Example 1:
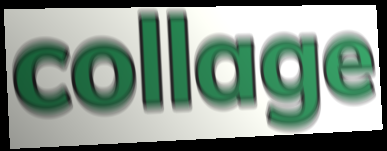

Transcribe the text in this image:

collage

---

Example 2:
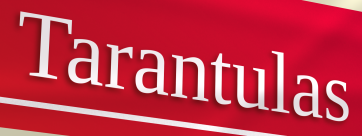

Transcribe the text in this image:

Tarantulas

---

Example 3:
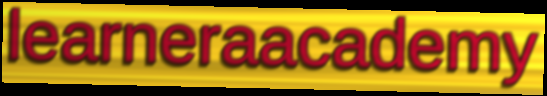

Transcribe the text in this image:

learneraacademy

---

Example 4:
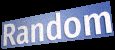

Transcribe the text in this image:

Random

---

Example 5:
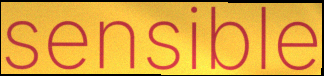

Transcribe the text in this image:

sensible